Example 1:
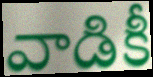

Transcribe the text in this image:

వాడికీ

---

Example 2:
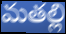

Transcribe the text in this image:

మతల్లి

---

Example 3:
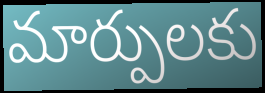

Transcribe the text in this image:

మార్పులకు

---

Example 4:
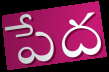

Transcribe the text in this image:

పేద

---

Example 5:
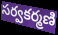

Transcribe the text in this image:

సర్వకర్మణి